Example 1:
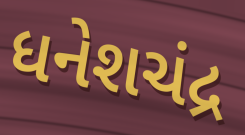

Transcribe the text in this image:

ધનેશચંદ્ર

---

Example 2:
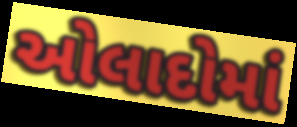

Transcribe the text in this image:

ઓલાદોમાં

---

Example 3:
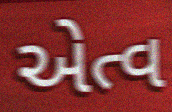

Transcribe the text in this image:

એત્વ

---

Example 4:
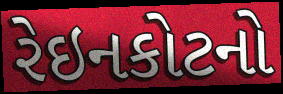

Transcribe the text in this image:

રેઇનકોટનો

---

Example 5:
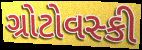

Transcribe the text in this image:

ગ્રોટોવસ્કી